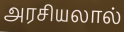
அரசியலால்